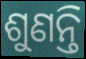
ଶୁଣନ୍ତି